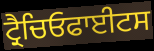
ਟ੍ਰੈਚਿਓਫਾਈਟਸ